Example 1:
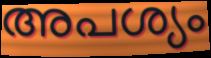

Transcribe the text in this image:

അപശ്യം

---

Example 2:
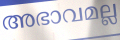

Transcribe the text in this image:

അഭാവമല്ല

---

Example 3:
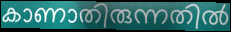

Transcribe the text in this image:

കാണാതിരുന്നതിൽ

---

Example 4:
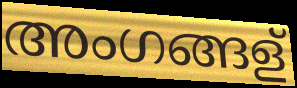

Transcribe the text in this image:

അംഗങ്ങള്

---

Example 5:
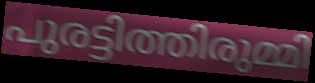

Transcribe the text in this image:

പുരട്ടിത്തിരുമ്മി